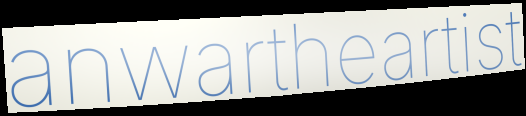
anwartheartist